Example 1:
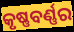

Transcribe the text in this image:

କୃଷ୍ଣବର୍ଣ୍ଣର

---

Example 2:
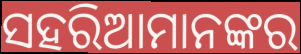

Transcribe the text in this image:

ସହରିଆମାନଙ୍କର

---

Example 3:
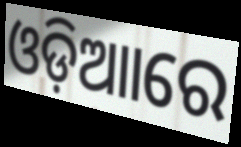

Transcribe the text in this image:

ଓଡ଼ିଆାରେ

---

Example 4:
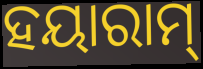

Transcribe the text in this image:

ହୟାରାମ୍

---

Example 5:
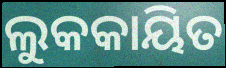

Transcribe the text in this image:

ଲୁକକାୟିତ